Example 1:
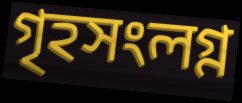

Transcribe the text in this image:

গৃহসংলগ্ন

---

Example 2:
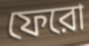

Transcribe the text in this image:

ফেরো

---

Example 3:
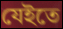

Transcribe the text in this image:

যেইতে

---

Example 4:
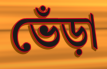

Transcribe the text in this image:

ভেঁড়া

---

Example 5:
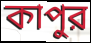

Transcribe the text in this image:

কাপুর